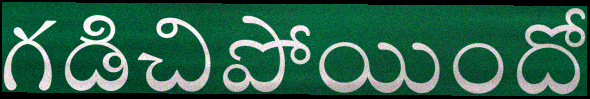
గడిచిపోయిందో